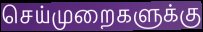
செய்முறைகளுக்கு